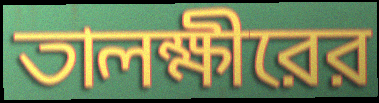
তালক্ষীরের